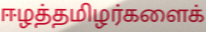
ஈழத்தமிழர்களைக்